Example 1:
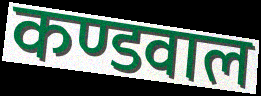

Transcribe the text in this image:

कण्डवाल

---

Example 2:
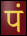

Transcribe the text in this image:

पं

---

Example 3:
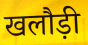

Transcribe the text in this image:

खलौड़ी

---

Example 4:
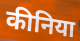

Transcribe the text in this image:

कीनिया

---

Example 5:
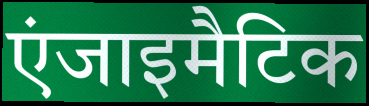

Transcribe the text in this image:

एंजाइमैटिक